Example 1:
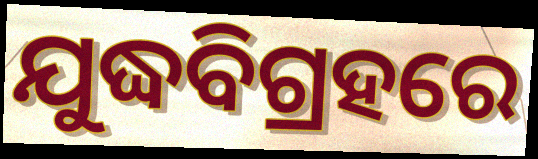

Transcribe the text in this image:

ଯୁଦ୍ଧବିଗ୍ରହରେ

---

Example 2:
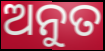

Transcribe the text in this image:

ଅନୁତ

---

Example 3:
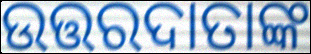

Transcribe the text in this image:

ଉତ୍ତରଦାତାଙ୍କ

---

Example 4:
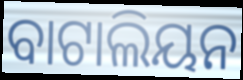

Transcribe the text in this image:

ବାଟାଲିୟନ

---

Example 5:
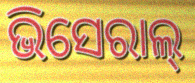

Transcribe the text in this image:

ଭିସେରାଲ୍